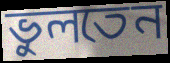
ভুলতেন